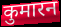
कुमारन